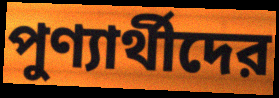
পুণ্যার্থীদের